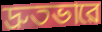
দ্ৰুতভাৱে